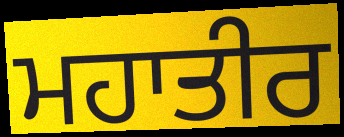
ਮਹਾਤੀਰ